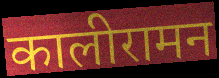
कालीरामन